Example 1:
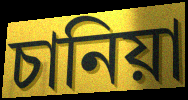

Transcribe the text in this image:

চানিয়া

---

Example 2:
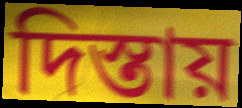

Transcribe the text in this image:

দিস্তায়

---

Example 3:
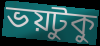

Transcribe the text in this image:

ভয়টুকু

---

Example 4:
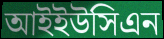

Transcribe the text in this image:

আইইউসিএন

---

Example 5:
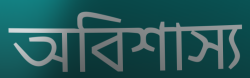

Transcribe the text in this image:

অবিশাস্য